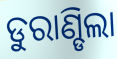
ଡୁରାଣ୍ଡିଲା